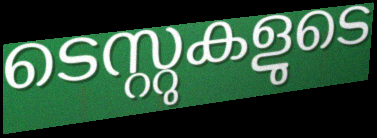
ടെസ്റ്റുകളുടെ